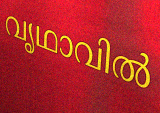
വൃഥാവിൽ